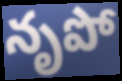
నృపో